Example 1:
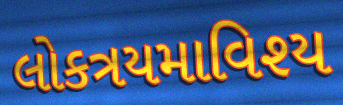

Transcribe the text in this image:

લોકત્રયમાવિશ્ય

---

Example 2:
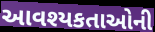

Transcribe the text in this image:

આવશ્યકતાઓની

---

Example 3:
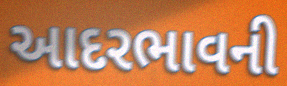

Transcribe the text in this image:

આદરભાવની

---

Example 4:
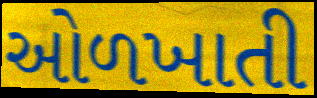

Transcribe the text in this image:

ઓળખાતી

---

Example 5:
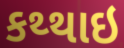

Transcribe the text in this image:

કથ્થાઇ